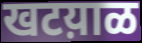
खटय़ाळ